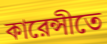
কারেন্সীতে